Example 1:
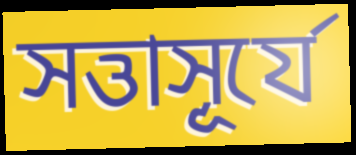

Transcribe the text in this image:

সত্তাসূর্যে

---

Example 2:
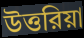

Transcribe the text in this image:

উত্তরিয়া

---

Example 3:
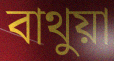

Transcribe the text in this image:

বাথুয়া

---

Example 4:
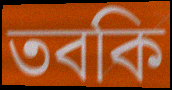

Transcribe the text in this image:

তবকি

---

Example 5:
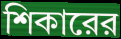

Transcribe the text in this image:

শিকারের